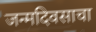
जन्मदिवसाचा